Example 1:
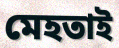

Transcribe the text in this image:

মেহতাই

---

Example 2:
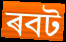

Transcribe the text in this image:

ৰবট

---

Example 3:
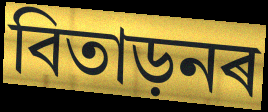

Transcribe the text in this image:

বিতাড়নৰ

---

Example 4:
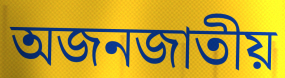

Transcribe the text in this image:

অজনজাতীয়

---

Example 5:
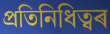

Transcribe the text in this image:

প্ৰতিনিধিত্বৰ